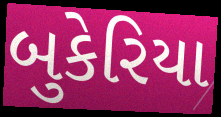
બુકેરિયા